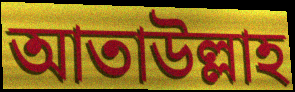
আতাউল্লাহ